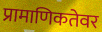
प्रामाणिकतेवर